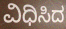
ವಿಧಿಸಿದ